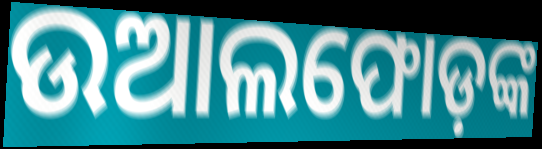
ଉଆଲଫୋଡ଼ଙ୍କ